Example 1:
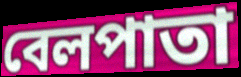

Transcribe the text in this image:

বেলপাতা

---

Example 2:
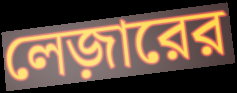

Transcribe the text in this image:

লেজ়ারের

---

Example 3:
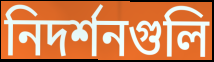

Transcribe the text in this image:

নিদর্শনগুলি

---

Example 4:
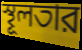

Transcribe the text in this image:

স্থূলতার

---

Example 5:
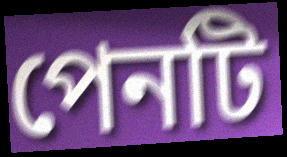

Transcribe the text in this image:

পেনটি